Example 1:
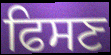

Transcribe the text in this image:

ਫਿਸਣ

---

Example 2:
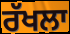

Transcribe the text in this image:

ਰੱਖਲਾ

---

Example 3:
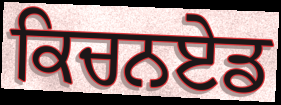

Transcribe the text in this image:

ਕਿਚਨਏਡ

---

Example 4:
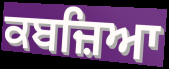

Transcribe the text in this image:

ਕਬਜ਼ਿਆ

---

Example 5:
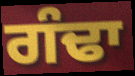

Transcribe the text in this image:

ਗੰਢਾ